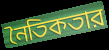
নৈতিকতার